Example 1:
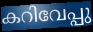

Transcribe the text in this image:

കറിവേപ്പു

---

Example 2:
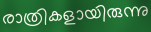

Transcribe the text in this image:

രാത്രികളായിരുന്നു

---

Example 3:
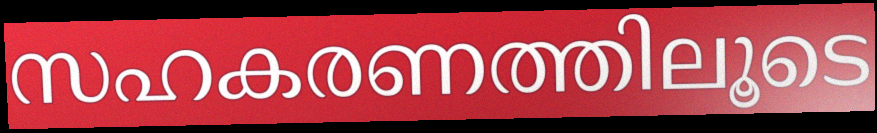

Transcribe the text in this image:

സഹകരണത്തിലൂടെ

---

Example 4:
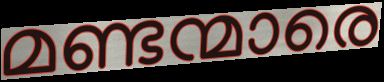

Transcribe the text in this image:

മണ്ടന്മാരെ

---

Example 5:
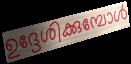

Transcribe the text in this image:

ഉദ്ദേശിക്കുമ്പോൾ